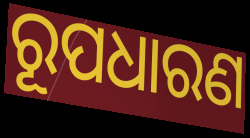
ରୂପଧାରଣ